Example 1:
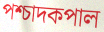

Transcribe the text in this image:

পশ্চাদকপাল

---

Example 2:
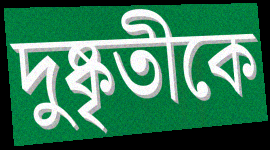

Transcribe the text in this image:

দুষ্কৃতীকে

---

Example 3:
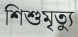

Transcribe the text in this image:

শিশুমৃত্যু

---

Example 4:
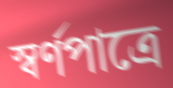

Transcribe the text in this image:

স্বর্ণপাত্রে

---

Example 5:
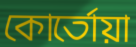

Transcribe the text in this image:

কোর্তোয়া